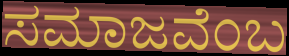
ಸಮಾಜವೆಂಬ